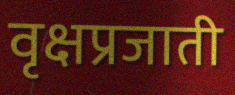
वृक्षप्रजाती